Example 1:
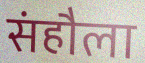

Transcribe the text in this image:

संहौला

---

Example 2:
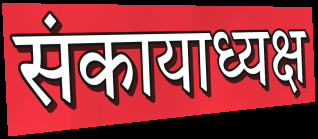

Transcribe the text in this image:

संकायाध्यक्ष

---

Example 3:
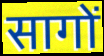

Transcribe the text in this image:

सागों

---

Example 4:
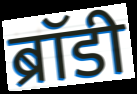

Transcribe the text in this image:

ब्रॉडी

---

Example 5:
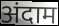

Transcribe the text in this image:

अंदाम